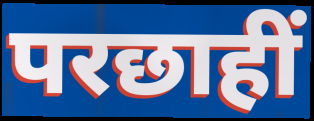
परछाहीं